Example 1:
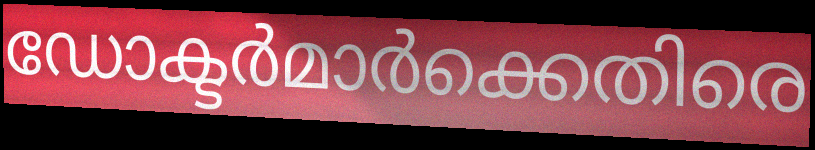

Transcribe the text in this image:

ഡോക്ടർമാർക്കെതിരെ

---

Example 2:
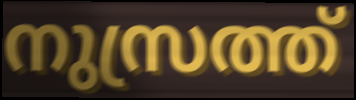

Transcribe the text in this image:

നുസ്രത്ത്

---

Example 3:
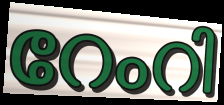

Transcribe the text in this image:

റേംറി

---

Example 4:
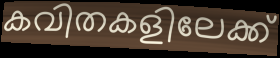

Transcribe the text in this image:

കവിതകളിലേക്ക്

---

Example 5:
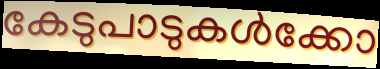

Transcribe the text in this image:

കേടുപാടുകൾക്കോ